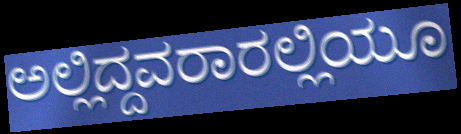
ಅಲ್ಲಿದ್ದವರಾರಲ್ಲಿಯೂ